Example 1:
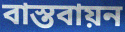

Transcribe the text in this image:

বাস্তবায়ন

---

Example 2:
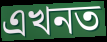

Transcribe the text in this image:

এখনত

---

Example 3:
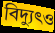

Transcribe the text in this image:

বিদ্যুৎও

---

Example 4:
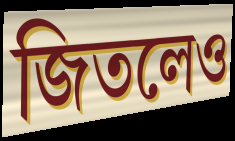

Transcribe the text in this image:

জিতলেও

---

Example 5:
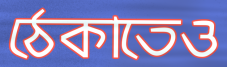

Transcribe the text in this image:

ঠেকাতেও